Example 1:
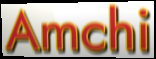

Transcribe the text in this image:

Amchi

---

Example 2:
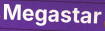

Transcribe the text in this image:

Megastar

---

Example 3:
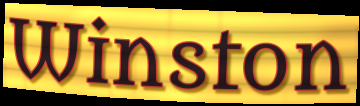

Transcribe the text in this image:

Winston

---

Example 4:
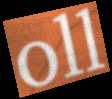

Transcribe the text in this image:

oll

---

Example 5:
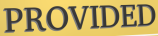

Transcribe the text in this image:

PROVIDED